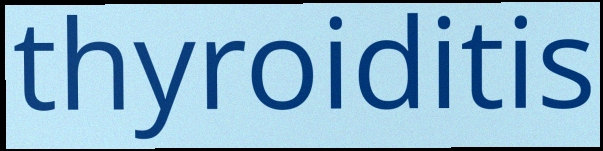
thyroiditis